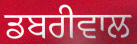
ਡਬਰੀਵਾਲ